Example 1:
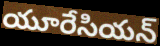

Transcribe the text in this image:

యూరేసియన్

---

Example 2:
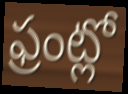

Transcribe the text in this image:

ఫ్రంట్లో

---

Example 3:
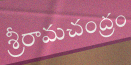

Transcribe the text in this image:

శ్రీరామచంద్రం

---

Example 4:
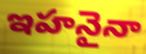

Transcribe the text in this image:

ఇహనైనా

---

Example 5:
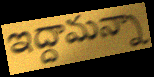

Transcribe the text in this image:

ఇద్దామన్నా